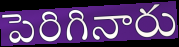
పెరిగినారు